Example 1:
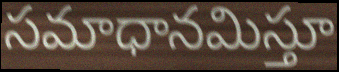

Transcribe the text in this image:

సమాధానమిస్తూ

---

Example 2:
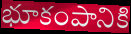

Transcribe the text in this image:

భూకంపానికి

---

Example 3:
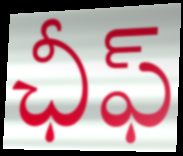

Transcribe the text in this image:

ఛీఫ్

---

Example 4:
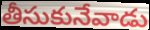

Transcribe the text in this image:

తీసుకునేవాడు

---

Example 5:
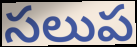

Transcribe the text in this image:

సలుప